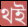
থই